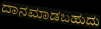
ದಾನಮಾಡಬಹುದು